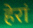
हेरां